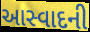
આસ્વાદની